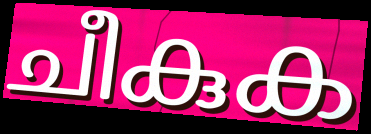
ചീകുക